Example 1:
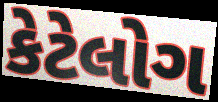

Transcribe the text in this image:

કેટેલોગ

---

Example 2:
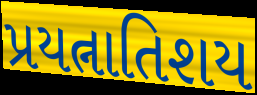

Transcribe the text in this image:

પ્રયત્નાતિશય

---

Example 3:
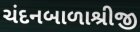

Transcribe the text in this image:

ચંદનબાળાશ્રીજી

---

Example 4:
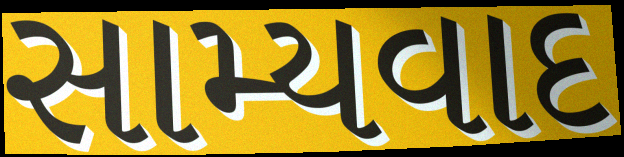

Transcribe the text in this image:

સામ્યવાદ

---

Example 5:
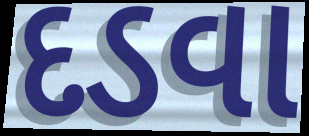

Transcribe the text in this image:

દડવા